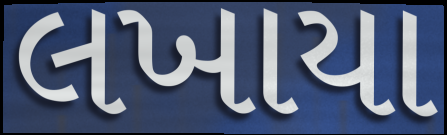
લખાયા